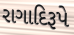
રાગાદિરૂપે